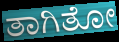
ತಾಗಿತೋ